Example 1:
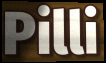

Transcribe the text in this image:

Pilli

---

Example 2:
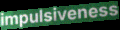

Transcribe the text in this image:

impulsiveness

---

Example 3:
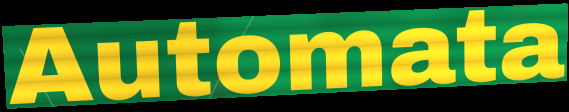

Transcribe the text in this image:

Automata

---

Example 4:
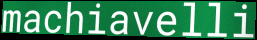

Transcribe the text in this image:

machiavelli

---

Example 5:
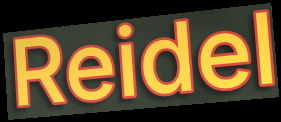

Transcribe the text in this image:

Reidel